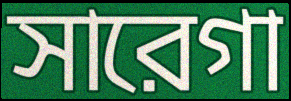
সারেগা